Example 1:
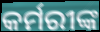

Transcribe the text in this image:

କର୍ମରୀଙ୍କ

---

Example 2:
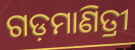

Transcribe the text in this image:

ଗଡ଼ମାଣିତ୍ରୀ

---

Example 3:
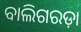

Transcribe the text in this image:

ବାଲିଗରଡ଼ା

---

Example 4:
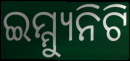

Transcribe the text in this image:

ଇମ୍ମ୍ୟୁନିଟି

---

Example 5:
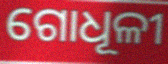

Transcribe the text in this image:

ଗୋଧୂଳୀ